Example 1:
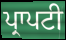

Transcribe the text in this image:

ਪ੍ਰਾਪਟੀ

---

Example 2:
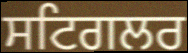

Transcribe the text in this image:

ਸਟਿਗਲਰ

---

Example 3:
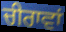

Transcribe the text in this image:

ਚੀਰਾਵਾਂ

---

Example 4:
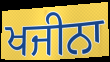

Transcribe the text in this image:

ਖਜੀਨਾ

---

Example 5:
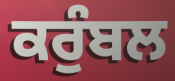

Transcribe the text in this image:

ਕਰੁੰਬਲ